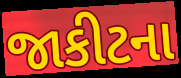
જાકીટના